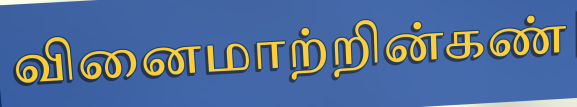
வினைமாற்றின்கண்